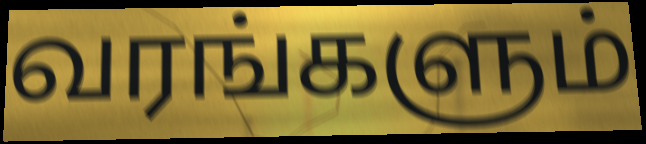
வரங்களும்